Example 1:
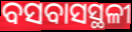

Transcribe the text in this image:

ବସବାସସ୍ଥଳୀ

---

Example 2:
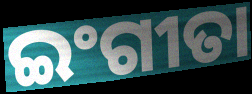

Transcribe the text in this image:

ଇଂଗୀତା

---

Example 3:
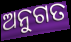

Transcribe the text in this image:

ଅନୁଗତ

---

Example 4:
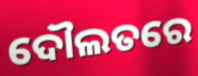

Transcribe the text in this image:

ଦୌଲତରେ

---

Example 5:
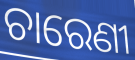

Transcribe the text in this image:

ଚାରେଣୀ